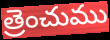
త్రెంచుము